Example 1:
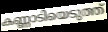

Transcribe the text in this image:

കണ്ണാടിയെടുത്ത്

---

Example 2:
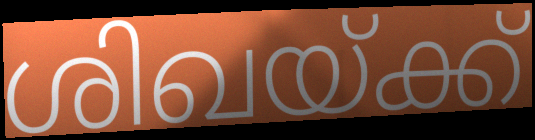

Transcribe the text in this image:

ശിഖയ്ക്ക്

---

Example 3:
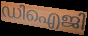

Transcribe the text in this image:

ഡിഐജി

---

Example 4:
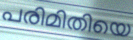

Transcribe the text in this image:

പരിമിതിയെ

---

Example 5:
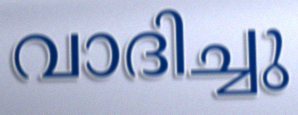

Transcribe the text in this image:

വാദിച്ചു